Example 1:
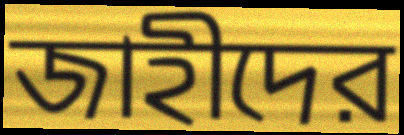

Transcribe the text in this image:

জাহীদের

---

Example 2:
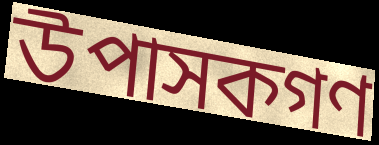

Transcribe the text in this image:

উপাসকগণ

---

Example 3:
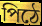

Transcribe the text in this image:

পিঠে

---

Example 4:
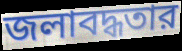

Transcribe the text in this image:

জলাবদ্ধতার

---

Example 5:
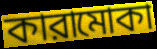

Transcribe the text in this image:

কারামোকা